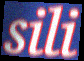
sili